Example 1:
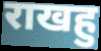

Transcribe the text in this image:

राखहु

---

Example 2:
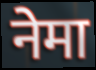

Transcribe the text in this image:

नेमा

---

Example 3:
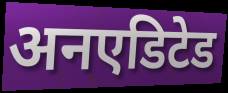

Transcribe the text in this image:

अनएडिटेड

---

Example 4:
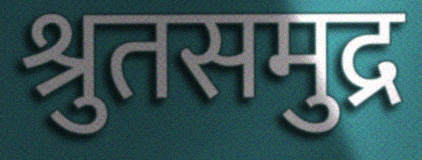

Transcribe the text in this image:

श्रुतसमुद्र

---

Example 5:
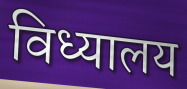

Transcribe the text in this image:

विध्यालय